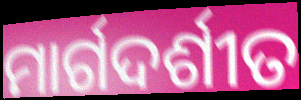
ମାର୍ଗଦର୍ଶୀତ